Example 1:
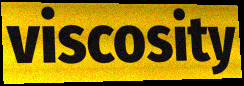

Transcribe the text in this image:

viscosity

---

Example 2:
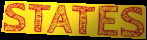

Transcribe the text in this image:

STATES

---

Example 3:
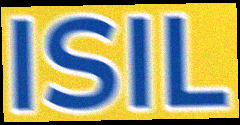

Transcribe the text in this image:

ISIL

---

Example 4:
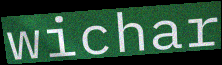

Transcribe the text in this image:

wichar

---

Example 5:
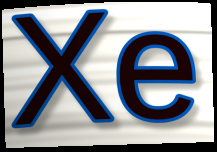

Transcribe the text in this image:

Xe